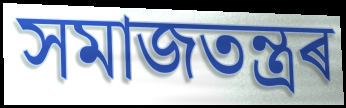
সমাজতন্ত্ৰৰ